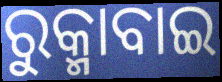
ରୁକ୍ମାବାଇ